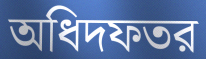
অধিদফতর